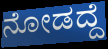
ನೋಡದ್ದೆ